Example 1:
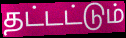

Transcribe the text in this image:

தட்டட்டும்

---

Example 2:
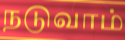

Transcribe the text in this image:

நடுவாம்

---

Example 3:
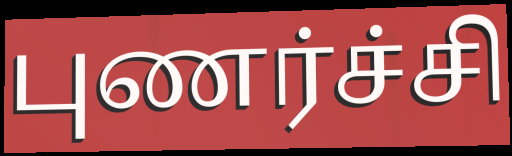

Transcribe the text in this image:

புணர்ச்சி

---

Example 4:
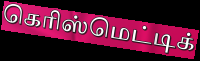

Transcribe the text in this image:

கெரிஸ்மெட்டிக்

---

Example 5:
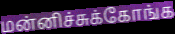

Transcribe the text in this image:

மன்னிச்சுக்கோங்க